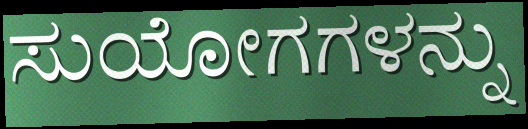
ಸುಯೋಗಗಳನ್ನು